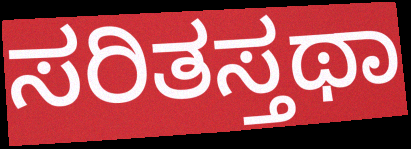
ಸರಿತಸ್ತಥಾ